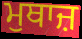
ਮੁਥਾਜ਼